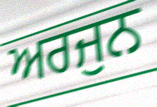
ਅਰਜੁਨ